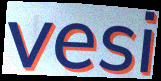
vesi